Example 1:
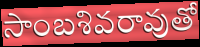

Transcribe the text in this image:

సాంబశివరావుతో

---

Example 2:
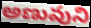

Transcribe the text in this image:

అణువుని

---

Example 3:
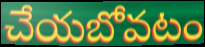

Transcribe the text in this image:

చేయబోవటం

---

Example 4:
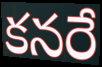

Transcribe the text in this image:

కనరే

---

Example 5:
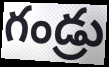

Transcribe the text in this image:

గండ్రు